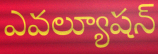
ఎవల్యూషన్